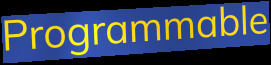
Programmable